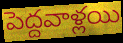
పెద్దవాళ్లయి